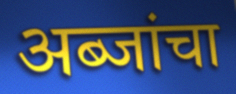
अब्जांचा